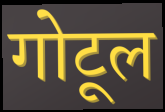
गोटूल